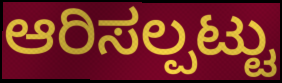
ಆರಿಸಲ್ಪಟ್ಟು